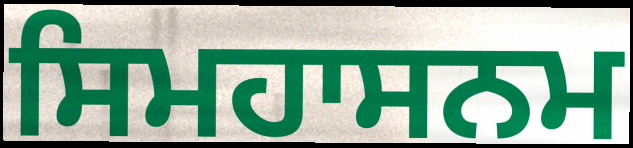
ਸਿਮਹਾਸਨਮ